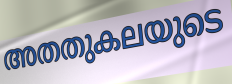
അതതുകലയുടെ